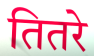
तितरे